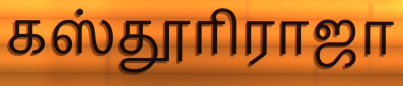
கஸ்தூரிராஜா